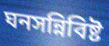
ঘনসন্নিবিষ্ট